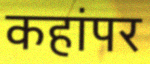
कहांपर